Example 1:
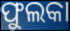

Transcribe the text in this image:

ଫୁଲକା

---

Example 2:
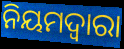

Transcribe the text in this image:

ନିୟମଦ୍ଵାରା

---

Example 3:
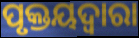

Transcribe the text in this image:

ପୃକ୍ତୟଦ୍ଵାରା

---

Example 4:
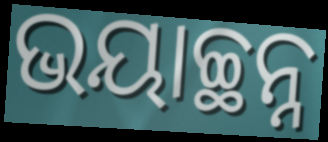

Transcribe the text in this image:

ଭୟାଚ୍ଛନ୍ନ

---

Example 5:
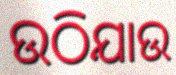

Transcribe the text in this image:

ଉଠିଯାଉ